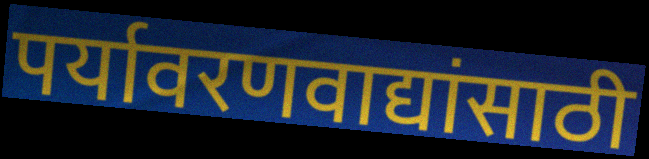
पर्यावरणवाद्यांसाठी